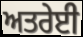
ਅਤਰੇਈ